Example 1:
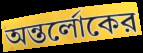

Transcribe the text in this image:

অন্তর্লোকের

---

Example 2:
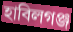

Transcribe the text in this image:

হাবিলগঞ্জ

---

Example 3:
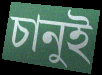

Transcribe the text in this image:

চানুই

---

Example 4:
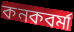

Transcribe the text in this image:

কনকবর্মা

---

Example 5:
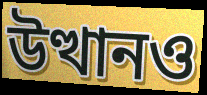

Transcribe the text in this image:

উত্থানও